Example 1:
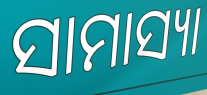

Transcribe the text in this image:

ସାମାସ୍ୟା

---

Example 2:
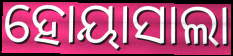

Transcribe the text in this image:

ହୋୟାସାଲା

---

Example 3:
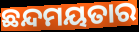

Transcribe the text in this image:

ଛନ୍ଦମୟତାର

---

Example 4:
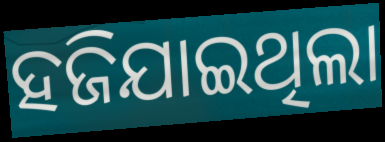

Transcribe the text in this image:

ହଜିଯାଇଥିଲା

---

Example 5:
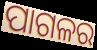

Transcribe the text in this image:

ପାଗଳର